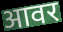
आवर